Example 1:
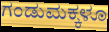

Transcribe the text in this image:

ಗಂಡುಮಕ್ಕಳೂ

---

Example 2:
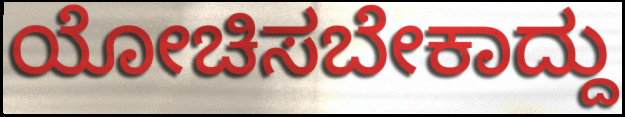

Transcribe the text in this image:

ಯೋಚಿಸಬೇಕಾದ್ದು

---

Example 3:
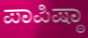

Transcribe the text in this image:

ಪಾಪಿಷ್ಠಾ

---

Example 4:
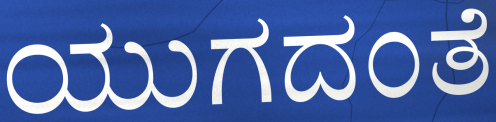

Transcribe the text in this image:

ಯುಗದಂತೆ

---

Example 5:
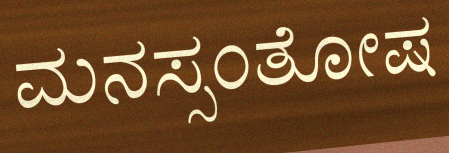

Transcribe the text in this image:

ಮನಸ್ಸಂತೋಷ